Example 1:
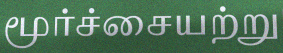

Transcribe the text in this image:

மூர்ச்சையற்று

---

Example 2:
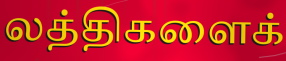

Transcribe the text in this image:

லத்திகளைக்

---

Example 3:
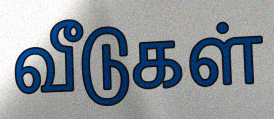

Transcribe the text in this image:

வீடுகள்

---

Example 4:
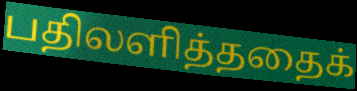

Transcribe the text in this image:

பதிலளித்ததைக்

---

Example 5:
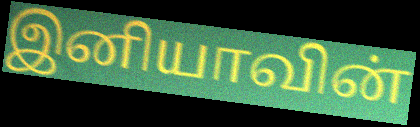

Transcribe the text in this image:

இனியாவின்